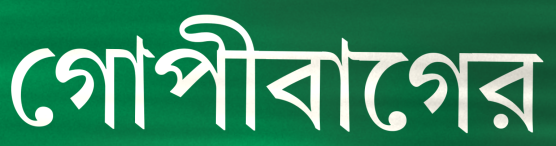
গোপীবাগের